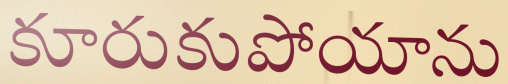
కూరుకుపోయాను